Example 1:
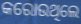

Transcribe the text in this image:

କରୋଉଥିଲେ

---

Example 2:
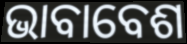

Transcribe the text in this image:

ଭାବାବେଶ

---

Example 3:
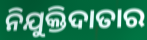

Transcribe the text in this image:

ନିଯୁକ୍ତିଦାତାର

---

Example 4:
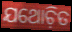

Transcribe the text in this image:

ଯଥୋଚ଼ିତ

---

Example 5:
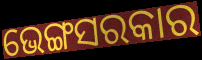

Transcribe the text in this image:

ଭେଙ୍ଗସରକାର